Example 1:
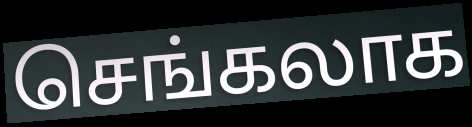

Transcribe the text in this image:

செங்கலாக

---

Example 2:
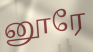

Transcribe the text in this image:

னூரே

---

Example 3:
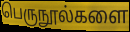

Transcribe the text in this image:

பெருநூல்களை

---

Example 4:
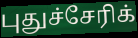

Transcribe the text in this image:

புதுச்சேரிக்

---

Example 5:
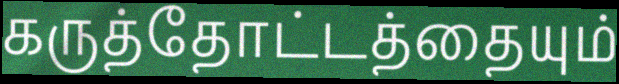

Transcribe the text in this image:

கருத்தோட்டத்தையும்